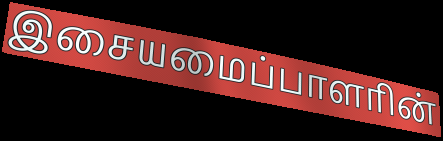
இசையமைப்பாளரின்